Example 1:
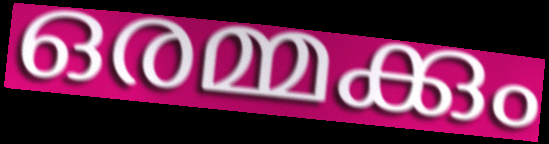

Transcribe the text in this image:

ഒരമ്മക്കും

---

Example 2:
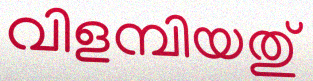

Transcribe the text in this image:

വിളമ്പിയതു്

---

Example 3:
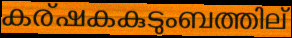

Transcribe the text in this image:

കര്ഷകകുടുംബത്തില്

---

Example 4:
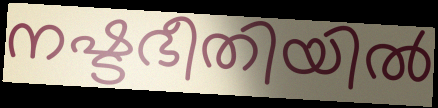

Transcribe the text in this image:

നഷ്ടഭീതിയിൽ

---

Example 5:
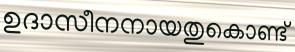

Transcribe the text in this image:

ഉദാസീനനായതുകൊണ്ട്